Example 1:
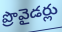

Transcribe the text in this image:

ప్రొవైడర్లు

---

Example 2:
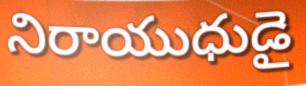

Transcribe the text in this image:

నిరాయుధుడై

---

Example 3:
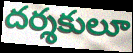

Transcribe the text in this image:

దర్శకులూ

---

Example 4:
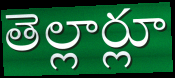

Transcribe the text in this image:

తెల్లార్లూ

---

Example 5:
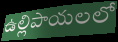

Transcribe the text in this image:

ఉల్లిపాయలలో